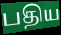
பதிய